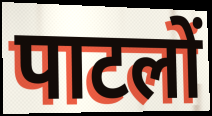
पाटलों